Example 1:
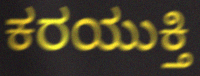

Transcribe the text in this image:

ಕರಯುಕ್ತಿ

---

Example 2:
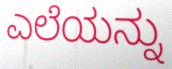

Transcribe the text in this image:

ಎಲೆಯನ್ನು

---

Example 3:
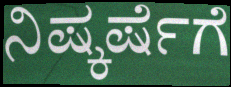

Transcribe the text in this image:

ನಿಷ್ಕರ್ಷೆಗೆ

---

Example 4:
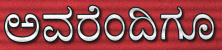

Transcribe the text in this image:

ಅವರೆಂದಿಗೂ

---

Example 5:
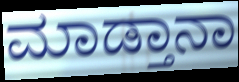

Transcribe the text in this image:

ಮಾಡ್ತಾನಾ